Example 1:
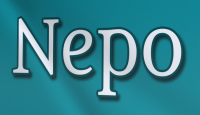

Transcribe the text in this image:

Nepo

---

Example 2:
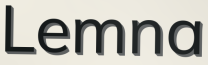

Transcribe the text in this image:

Lemna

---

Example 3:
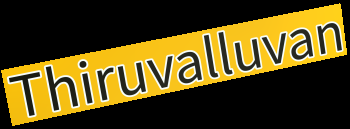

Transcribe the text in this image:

Thiruvalluvan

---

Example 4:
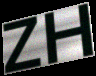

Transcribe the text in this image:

ZH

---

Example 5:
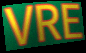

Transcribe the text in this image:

VRE